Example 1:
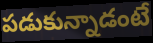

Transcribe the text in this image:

పడుకున్నాడంటే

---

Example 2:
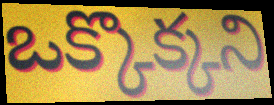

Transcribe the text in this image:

ఒక్కొక్కని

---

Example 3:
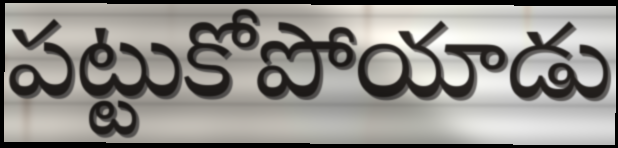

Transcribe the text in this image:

పట్టుకోపోయాడు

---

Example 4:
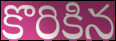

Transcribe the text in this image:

కొరికిన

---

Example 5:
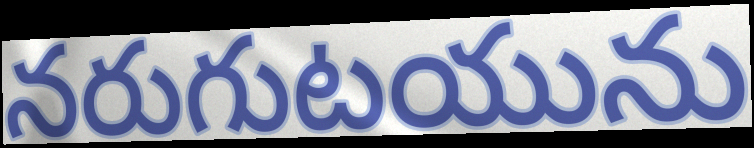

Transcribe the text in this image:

నరుగుటయును